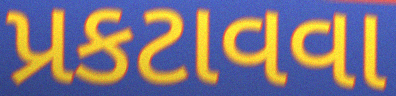
પ્રકટાવવા